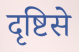
दृष्टिसे